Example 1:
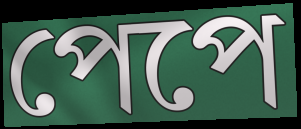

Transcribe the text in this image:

পেপে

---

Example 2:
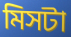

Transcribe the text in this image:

মিসটা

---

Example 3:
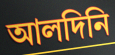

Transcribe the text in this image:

আলদিনি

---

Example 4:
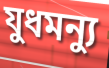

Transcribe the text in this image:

যুধমন্যু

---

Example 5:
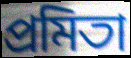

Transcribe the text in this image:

প্রমিতা